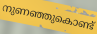
നുണഞ്ഞുകൊണ്ട്